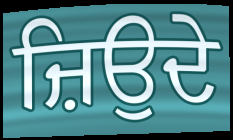
ਜ਼ਿਉਦੇ